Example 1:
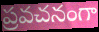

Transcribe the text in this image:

ప్రవచనంగా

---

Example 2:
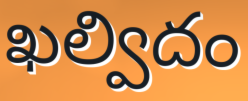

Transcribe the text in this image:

ఖల్విదం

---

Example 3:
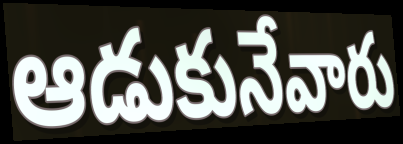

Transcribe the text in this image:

ఆడుకునేవారు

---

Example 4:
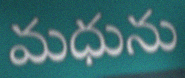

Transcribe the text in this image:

మధును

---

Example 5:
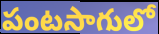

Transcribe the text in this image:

పంటసాగులో